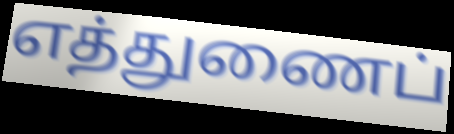
எத்துணைப்